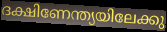
ദക്ഷിണേന്ത്യയിലേക്കു